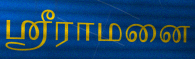
ஸ்ரீராமனை